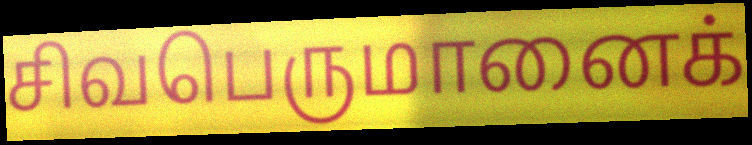
சிவபெருமானைக்